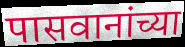
पासवानांच्या